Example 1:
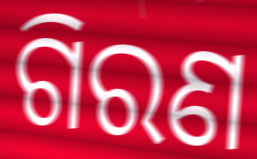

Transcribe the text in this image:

ଗିରଣ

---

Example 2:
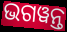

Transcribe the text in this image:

ଭଗୱନ୍ତ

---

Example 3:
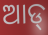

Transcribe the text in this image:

ଆଡ୍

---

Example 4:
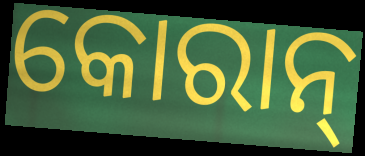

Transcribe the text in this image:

କୋରାନ୍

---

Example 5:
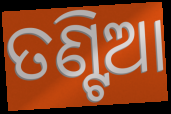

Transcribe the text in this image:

ତଣ୍ଟିଆ